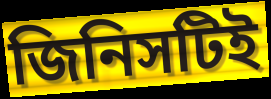
জিনিসটিই